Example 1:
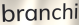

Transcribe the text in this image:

branchi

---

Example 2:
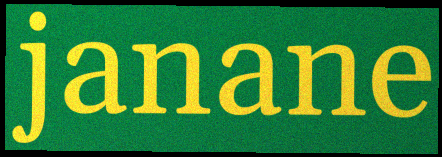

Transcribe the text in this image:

janane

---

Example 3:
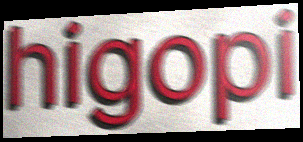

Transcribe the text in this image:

higopi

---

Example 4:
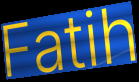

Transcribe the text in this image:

Fatih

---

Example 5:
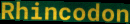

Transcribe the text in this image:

Rhincodon